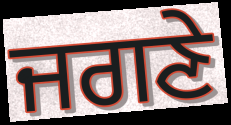
ਜਗਣੇ